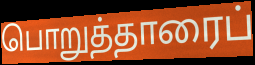
பொறுத்தாரைப்